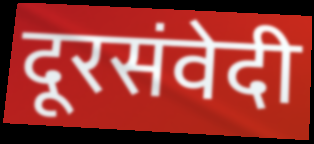
दूरसंवेदी